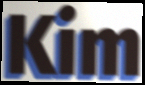
Kim